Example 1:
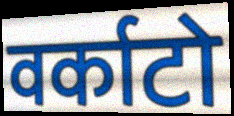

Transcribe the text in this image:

वर्काटो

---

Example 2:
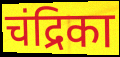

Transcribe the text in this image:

चंद्रिका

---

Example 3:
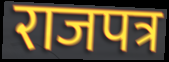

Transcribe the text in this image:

राजपत्र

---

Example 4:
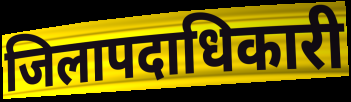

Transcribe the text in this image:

जिलापदाधिकारी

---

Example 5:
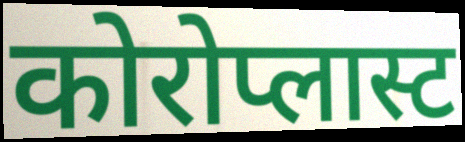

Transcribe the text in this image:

कोरोप्लास्ट